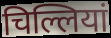
चिल्लियां